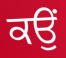
ਕਉਂ